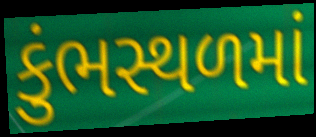
કુંભસ્થળમાં